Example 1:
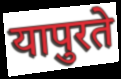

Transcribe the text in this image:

यापुरते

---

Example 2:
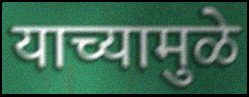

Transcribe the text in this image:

याच्यामुळे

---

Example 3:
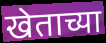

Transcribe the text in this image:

खेताच्या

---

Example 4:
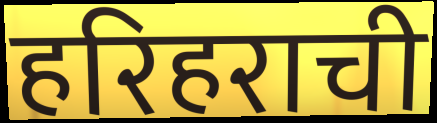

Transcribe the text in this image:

हरिहराची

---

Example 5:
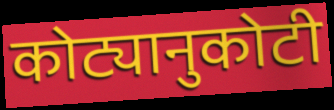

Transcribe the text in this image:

कोट्यानुकोटी